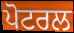
ਪੋਟਰਲ